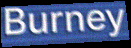
Burney